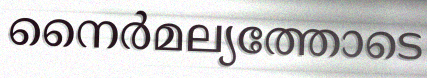
നൈർമല്യത്തോടെ